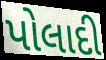
પોલાદી